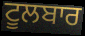
ਟੂਲਬਾਰ